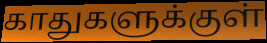
காதுகளுக்குள்